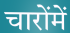
चारोंमें